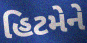
હિટમેને